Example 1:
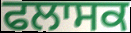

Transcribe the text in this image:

ਫਲਾਸਕ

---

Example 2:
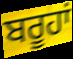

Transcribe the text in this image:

ਬਰੂਹਾਂ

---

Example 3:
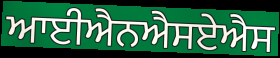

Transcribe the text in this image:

ਆਈਐਨਐਸਏਐਸ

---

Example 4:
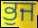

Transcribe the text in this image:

ਭੁਜ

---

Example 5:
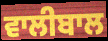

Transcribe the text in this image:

ਵਾਲੀਬਾਲ